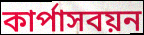
কার্পাসবয়ন